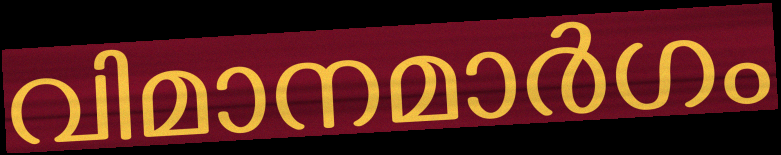
വിമാനമാർഗം